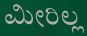
ಮೀರಿಲ್ಲ